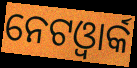
ନେଟଓ୍ବାର୍କ